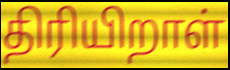
திரியிறாள்